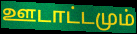
ஊடாட்டமும்